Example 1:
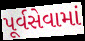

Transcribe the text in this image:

પૂર્વસેવામાં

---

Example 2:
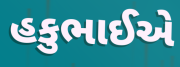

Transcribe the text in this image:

હકુભાઈએ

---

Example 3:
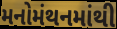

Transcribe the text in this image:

મનોમંથનમાંથી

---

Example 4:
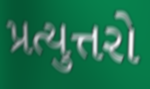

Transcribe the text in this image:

પ્રત્યુત્તરો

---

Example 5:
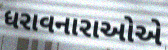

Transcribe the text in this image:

ધરાવનારાઓએ